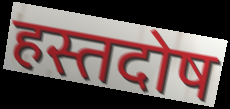
हस्तदोष